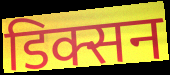
डिक्सन